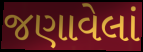
જણાવેલાં